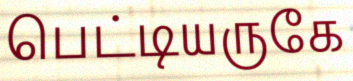
பெட்டியருகே